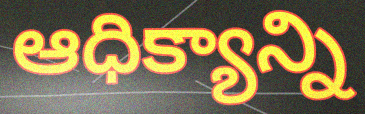
ఆధిక్యాన్ని